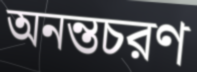
অনন্তচরণ